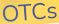
OTCs